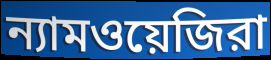
ন্যামওয়েজিরা